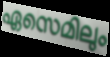
ഏസെമിലും